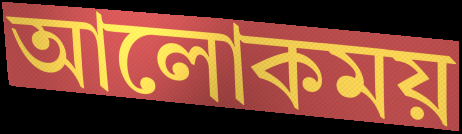
আলোকময়